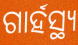
ଗାର୍ହସ୍ଥ୍ୟ